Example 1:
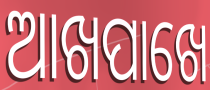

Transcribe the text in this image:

ଆଖପାଖେ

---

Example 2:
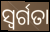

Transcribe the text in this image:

ସ୍ବର୍ଗତା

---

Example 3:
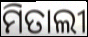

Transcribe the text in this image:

ମିତାଲୀ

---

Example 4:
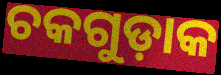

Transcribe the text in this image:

ଚକଗୁଡ଼ାକ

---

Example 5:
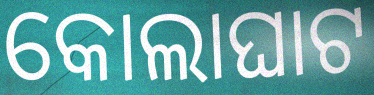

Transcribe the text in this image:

କୋଲାଘାଟ